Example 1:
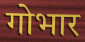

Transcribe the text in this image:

गोभार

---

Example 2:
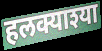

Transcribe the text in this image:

हलक्याश्या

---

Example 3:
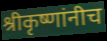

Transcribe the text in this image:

श्रीकृष्णांनीच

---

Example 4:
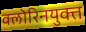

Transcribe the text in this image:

क्लोरिनयुक्त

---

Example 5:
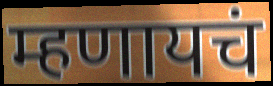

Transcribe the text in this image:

म्हणायचं